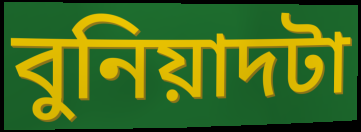
বুনিয়াদটা